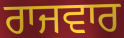
ਰਾਜਵਾਰ